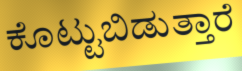
ಕೊಟ್ಟುಬಿಡುತ್ತಾರೆ